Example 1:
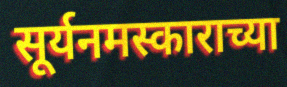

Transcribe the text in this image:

सूर्यनमस्काराच्या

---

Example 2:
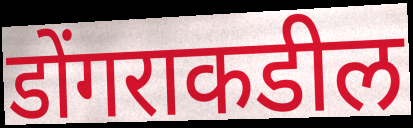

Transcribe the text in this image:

डोंगराकडील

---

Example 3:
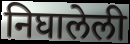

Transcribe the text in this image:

निघालेली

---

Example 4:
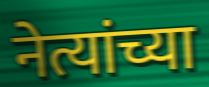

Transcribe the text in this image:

नेत्यांच्या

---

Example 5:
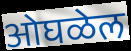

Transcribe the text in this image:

ओघळेल